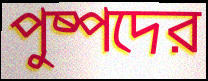
পুষ্পদের